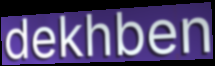
dekhben